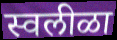
स्वलीळा